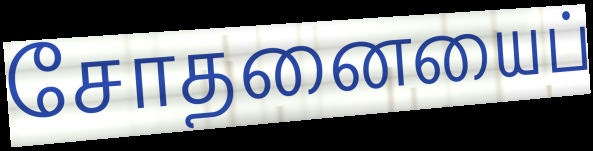
சோதனையைப்